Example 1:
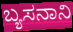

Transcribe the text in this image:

ಬ್ಯಸನಾನಿ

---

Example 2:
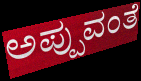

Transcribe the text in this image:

ಅಪ್ಪುವಂತೆ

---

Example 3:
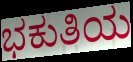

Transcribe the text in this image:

ಭಕುತಿಯ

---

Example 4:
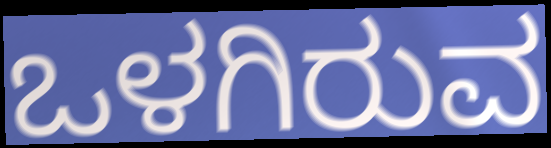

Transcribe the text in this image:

ಒಳಗಿರುವ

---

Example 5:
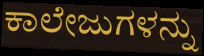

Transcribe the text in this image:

ಕಾಲೇಜುಗಳನ್ನು